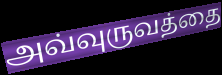
அவ்வுருவத்தை